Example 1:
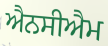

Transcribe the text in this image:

ਐਨਸੀਐਮ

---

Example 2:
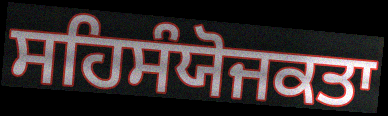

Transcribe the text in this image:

ਸਹਿਸੰਯੋਜਕਤਾ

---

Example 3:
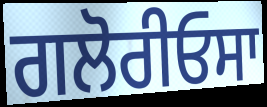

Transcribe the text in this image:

ਗਲੋਰੀਓਸਾ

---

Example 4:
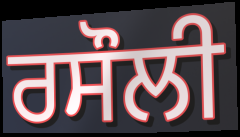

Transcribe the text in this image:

ਰਸੌਲੀ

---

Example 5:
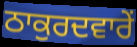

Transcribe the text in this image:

ਠਾਕੁਰਦਵਾਰੇਂ